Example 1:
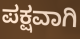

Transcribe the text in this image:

ಪಕ್ಷವಾಗಿ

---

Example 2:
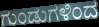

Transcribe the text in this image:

ಗುಂಡುಗಳಿಂದ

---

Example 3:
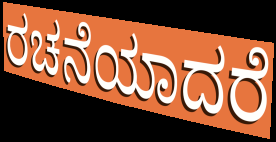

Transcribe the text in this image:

ರಚನೆಯಾದರೆ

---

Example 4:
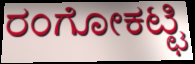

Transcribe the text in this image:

ರಂಗೋಕಟ್ಟಿ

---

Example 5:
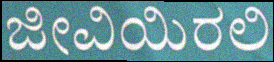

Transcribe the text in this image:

ಜೀವಿಯಿರಲಿ